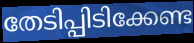
തേടിപ്പിടിക്കേണ്ട